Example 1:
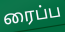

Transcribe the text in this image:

ரைப்ப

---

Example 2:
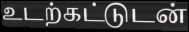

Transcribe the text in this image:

உடற்கட்டுடன்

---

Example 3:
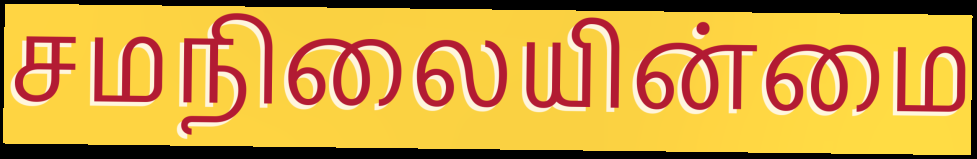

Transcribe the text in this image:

சமநிலையின்மை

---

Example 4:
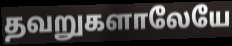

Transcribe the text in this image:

தவறுகளாலேயே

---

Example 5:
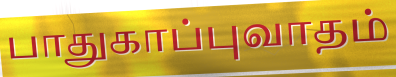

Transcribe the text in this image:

பாதுகாப்புவாதம்